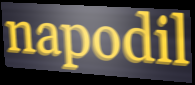
napodil